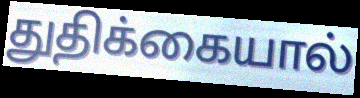
துதிக்கையால்